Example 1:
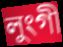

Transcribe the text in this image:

লুংগী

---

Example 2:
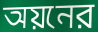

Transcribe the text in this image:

অয়নের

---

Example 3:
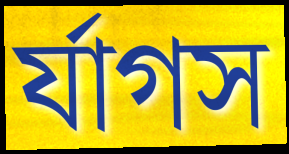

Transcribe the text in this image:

র্যাগস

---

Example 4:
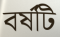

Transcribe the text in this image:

বর্ষটি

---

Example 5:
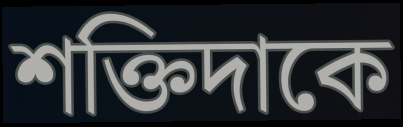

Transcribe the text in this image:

শক্তিদাকে